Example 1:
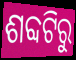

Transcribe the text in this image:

ଶବ୍ଦଟିରୁ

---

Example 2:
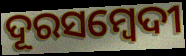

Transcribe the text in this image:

ଦୂରସମ୍ବେଦୀ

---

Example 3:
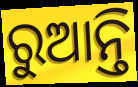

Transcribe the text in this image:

ରୁଆନ୍ତି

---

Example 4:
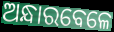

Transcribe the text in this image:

ଅନ୍ଧାରବେଳେ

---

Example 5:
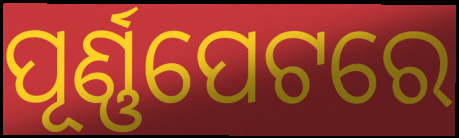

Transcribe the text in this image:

ପୂର୍ଣ୍ଣପେଟରେ